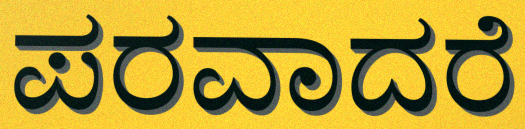
ಪರವಾದರೆ